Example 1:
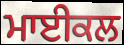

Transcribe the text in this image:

ਮਾਈਕਲ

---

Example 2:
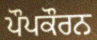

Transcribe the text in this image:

ਪੌਪਕੌਰਨ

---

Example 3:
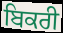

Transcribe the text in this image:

ਬਿਕਰੀ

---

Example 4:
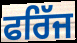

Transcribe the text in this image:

ਫਰਿੱਜ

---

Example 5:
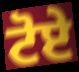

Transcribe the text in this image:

ਟੋਏ